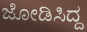
ಜೋಡಿಸಿದ್ದ